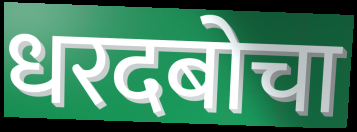
धरदबोचा